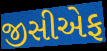
જીસીએફ